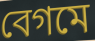
বেগমে